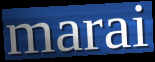
marai